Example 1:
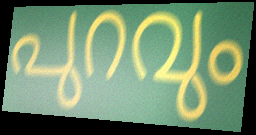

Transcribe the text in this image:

പുറവും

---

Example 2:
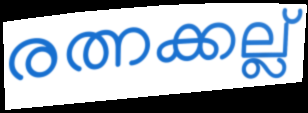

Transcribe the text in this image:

രത്നക്കല്ല്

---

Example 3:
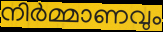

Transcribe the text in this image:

നിർമ്മാണവും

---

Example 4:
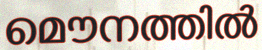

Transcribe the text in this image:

മൌനത്തിൽ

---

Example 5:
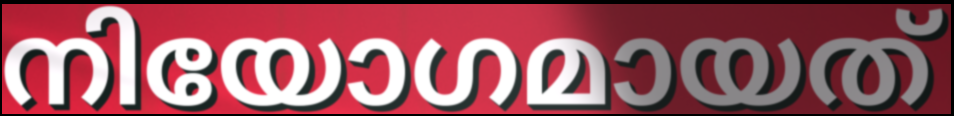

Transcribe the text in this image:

നിയോഗമായത്